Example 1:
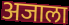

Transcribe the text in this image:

अजाला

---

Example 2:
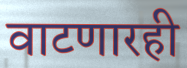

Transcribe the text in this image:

वाटणारही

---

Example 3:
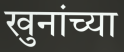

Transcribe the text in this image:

खुनांच्या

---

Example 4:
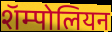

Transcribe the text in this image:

शॅम्पोलियन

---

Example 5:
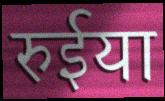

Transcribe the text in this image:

रुईया